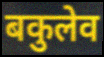
बकुलेव